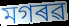
মগৰৱ